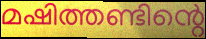
മഷിത്തണ്ടിന്റെ